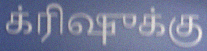
க்ரிஷுக்கு